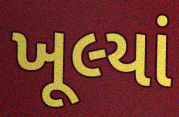
ખૂલ્યાં